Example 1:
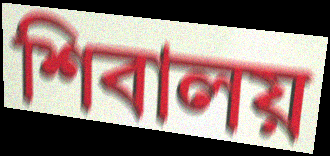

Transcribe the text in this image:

শিবালয়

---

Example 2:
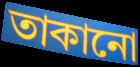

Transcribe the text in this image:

তাকানো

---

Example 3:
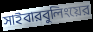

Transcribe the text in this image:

সাইবারবুলিংয়ের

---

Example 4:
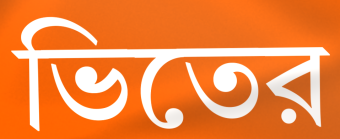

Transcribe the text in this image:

ভিতের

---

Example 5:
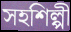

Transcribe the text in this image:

সহশিল্পী